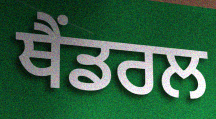
ਥੈਂਡਰਲ